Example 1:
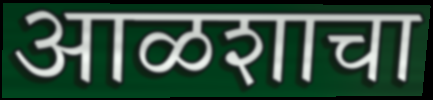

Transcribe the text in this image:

आळशाचा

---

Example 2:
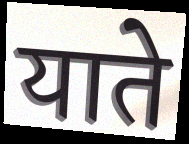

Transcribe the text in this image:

याते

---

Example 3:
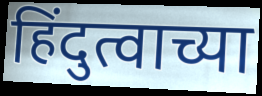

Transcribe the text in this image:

हिंदुत्वाच्या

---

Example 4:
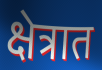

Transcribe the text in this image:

क्षेत्रात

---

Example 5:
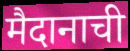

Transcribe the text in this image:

मैदानाची